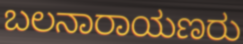
ಬಲನಾರಾಯಣರು